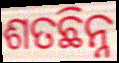
ଶତଛିନ୍ନ